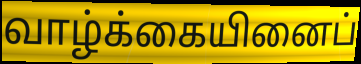
வாழ்க்கையினைப்